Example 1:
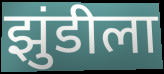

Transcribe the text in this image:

झुंडीला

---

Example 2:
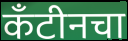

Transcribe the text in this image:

कँटीनचा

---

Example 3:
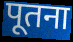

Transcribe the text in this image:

पूतना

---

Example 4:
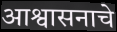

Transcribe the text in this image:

आश्वासनाचे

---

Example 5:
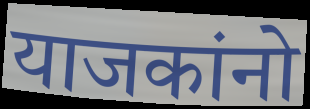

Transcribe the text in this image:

याजकांनो